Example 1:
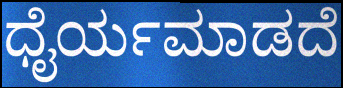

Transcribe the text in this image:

ಧೈರ್ಯಮಾಡದೆ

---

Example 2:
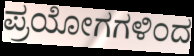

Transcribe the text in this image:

ಪ್ರಯೋಗಗಳಿಂದ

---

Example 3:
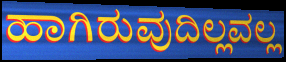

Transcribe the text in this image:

ಹಾಗಿರುವುದಿಲ್ಲವಲ್ಲ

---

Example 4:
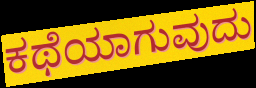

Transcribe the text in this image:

ಕಥೆಯಾಗುವುದು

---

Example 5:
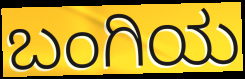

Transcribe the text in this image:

ಬಂಗಿಯ